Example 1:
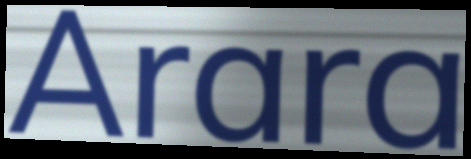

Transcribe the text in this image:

Arara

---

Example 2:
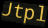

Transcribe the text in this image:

Jtpl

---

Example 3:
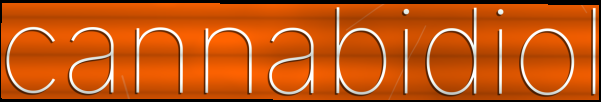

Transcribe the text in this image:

cannabidiol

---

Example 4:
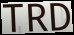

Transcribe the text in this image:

TRD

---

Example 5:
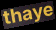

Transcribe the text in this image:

thaye